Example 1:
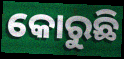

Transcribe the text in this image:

କୋରୁଛି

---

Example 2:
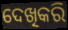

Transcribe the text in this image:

ଦେଖିକରି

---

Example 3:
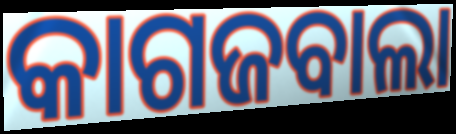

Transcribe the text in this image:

କାଗଜବାଲା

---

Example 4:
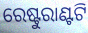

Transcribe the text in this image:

ରେଷ୍ଟୁରାଣ୍ଟଟି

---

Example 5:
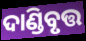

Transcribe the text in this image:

ଦାଣ୍ଡିବୃତ୍ତ